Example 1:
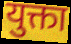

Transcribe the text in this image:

युक्ता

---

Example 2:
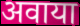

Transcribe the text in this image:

अवाया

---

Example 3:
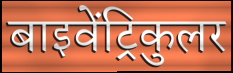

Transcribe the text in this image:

बाइवेंट्रिकुलर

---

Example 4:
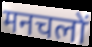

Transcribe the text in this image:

मनचलों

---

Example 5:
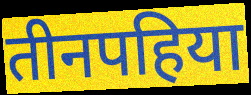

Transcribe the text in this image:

तीनपहिया